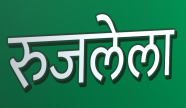
रुजलेला